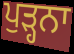
ਪੁੜ੍ਹਨਾ